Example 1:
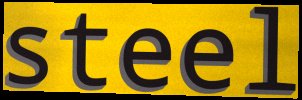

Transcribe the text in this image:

steel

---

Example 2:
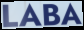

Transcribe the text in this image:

LABA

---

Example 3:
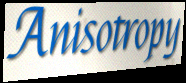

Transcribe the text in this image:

Anisotropy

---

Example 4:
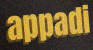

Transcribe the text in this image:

appadi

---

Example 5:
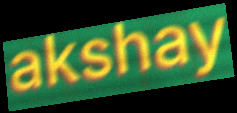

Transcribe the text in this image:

akshay